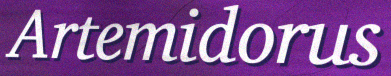
Artemidorus